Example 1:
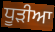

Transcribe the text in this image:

ਧੂੜੀਆ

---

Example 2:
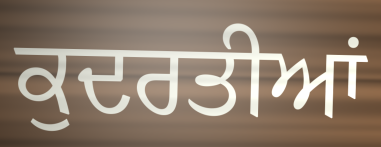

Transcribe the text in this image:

ਕੁਦਰਤੀਆਂ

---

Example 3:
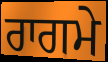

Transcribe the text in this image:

ਰਾਗਮੇ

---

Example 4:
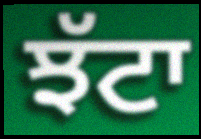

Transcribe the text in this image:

ਝੱਟਾ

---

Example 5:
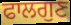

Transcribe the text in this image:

ਫਾਲਗੁਣ